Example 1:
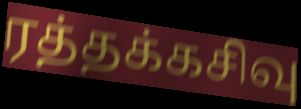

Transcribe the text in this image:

ரத்தக்கசிவு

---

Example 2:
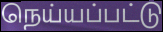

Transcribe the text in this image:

நெய்யப்பட்டு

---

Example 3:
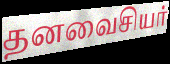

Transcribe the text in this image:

தனவைசியர்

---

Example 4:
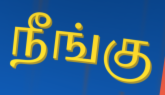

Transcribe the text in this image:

நீங்கு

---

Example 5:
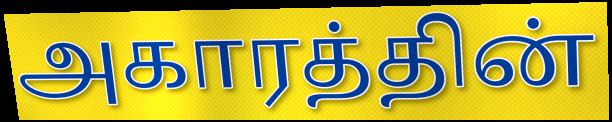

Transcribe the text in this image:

அகாரத்தின்